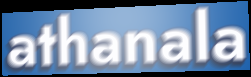
athanala